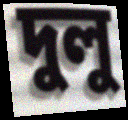
দুলু